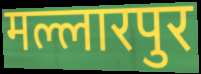
मल्लारपुर